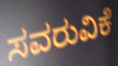
ಸವರುವಿಕೆ